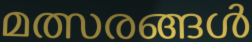
മത്സരങ്ങൾ